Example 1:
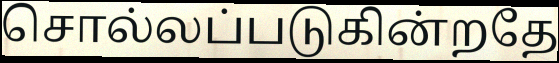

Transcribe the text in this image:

சொல்லப்படுகின்றதே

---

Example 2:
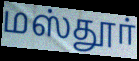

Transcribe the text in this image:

மஸ்தூர்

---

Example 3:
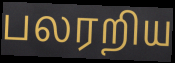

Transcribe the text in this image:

பலரறிய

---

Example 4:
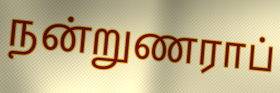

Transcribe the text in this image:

நன்றுணராப்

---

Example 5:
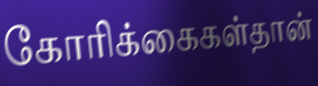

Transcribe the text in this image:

கோரிக்கைகள்தான்